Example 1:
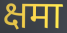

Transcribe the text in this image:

क्षमा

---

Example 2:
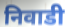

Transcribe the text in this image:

निवाडी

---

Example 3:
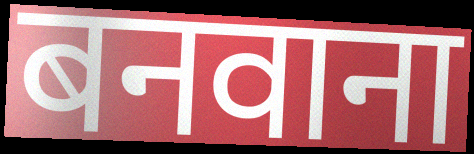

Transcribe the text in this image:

बनवाना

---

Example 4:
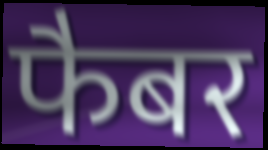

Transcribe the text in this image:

फैबर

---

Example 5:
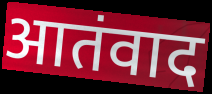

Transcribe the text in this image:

आतंवाद